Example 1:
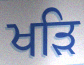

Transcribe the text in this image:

ਖੜਿ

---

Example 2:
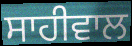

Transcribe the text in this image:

ਸਾਹੀਵਾਲ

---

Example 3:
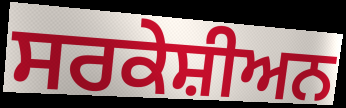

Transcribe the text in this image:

ਸਰਕੇਸ਼ੀਅਨ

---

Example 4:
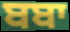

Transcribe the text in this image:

ਬਬਾ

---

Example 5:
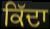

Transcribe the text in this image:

ਕਿੱਦਾ